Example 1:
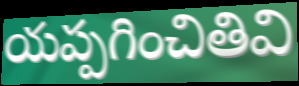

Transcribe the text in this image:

యప్పగించితివి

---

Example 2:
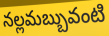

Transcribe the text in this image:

నల్లమబ్బువంటి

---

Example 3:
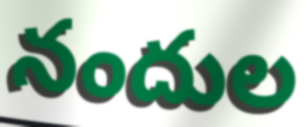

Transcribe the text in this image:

నందుల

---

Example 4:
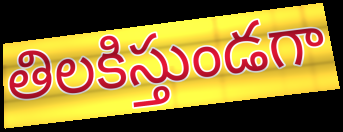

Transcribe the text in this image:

తిలకిస్తుండగా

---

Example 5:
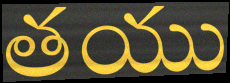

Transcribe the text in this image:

తయు